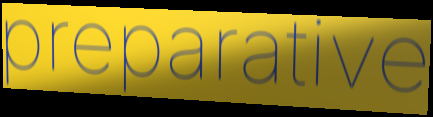
preparative